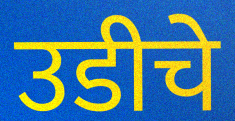
उडीचे